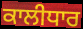
ਕਾਲੀਧਾਰ